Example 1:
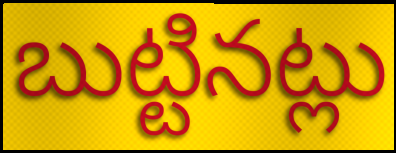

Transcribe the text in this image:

బుట్టినట్లు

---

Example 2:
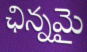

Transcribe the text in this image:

ఛిన్నమై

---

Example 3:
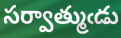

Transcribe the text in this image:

సర్వాత్ముఁడు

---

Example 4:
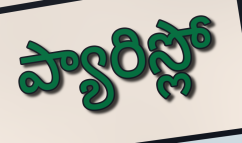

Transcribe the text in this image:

ప్యారిస్లో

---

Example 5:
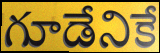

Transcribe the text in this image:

గూడేనికే